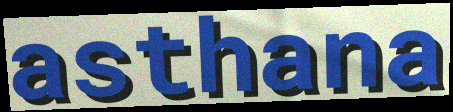
asthana